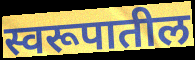
स्वरूपातील